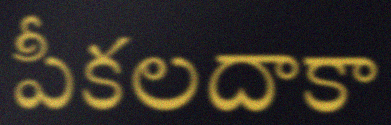
పీకలదాకా